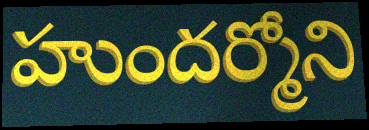
హుందర్మోని